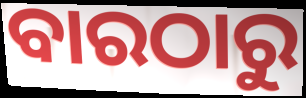
ବାରଠାରୁ